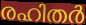
രഹിതർ